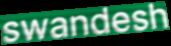
swandesh